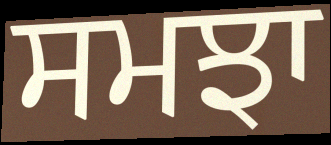
ਸਮਝਾ